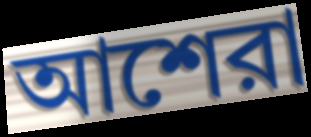
আশেরা